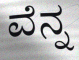
ವೆನ್ನ